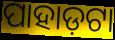
ପାହାଡ଼ଟା